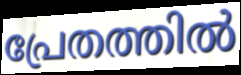
പ്രേതത്തിൽ